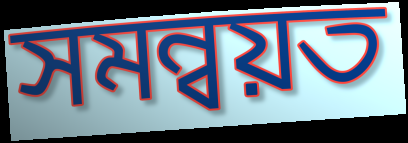
সমন্বয়ত